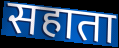
सहाता